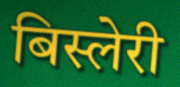
बिस्लेरी